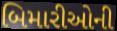
બિમારીઓની